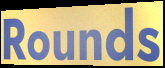
Rounds